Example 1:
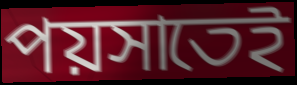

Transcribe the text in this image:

পয়সাতেই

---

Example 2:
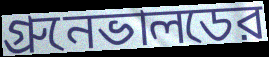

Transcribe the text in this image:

গ্রুনেভালডের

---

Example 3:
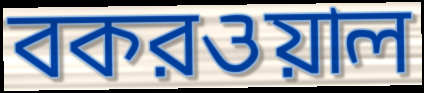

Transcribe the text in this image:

বকরওয়াল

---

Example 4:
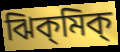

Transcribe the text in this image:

ঝিক্‌মিক্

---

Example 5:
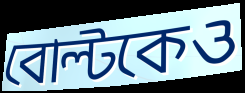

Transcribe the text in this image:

বোল্টকেও